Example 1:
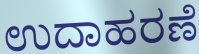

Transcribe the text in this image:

ಉದಾಹರಣೆ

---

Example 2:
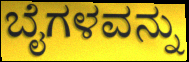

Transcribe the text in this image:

ಬೈಗಳವನ್ನು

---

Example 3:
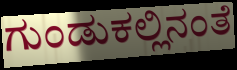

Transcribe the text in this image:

ಗುಂಡುಕಲ್ಲಿನಂತೆ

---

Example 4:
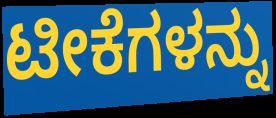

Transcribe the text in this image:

ಟೀಕೆಗಳನ್ನು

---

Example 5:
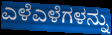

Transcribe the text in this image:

ಎಳೆಎಳೆಗಳನ್ನು